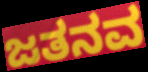
ಜತನವ